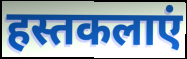
हस्तकलाएं